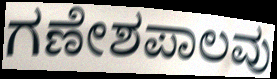
ಗಣೇಶಪಾಲವು